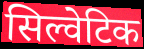
सिल्वेटिक